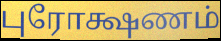
புரோக்ஷணம்